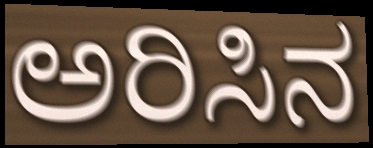
ಅರಿಸಿನ